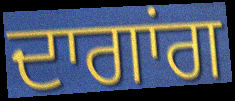
ਦਾਗਾਂਗ